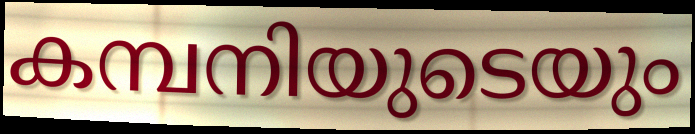
കമ്പനിയുടെയും